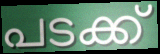
പടക്ക്